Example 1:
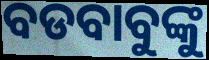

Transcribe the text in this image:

ବଡବାବୁଙ୍କୁ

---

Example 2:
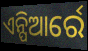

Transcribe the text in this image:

ଏନ୍ପିଆର୍ରେ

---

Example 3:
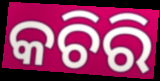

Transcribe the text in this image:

କଚିରି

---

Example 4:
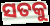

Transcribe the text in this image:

ସତକୁ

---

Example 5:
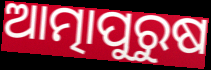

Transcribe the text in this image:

ଆତ୍ମାପୁରୁଷ